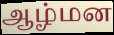
ஆழ்மன